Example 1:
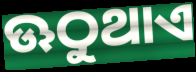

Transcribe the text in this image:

ଊଠୁଥାଏ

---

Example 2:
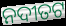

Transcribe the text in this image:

ନଦୀତଟ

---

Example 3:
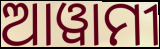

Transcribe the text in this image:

ଆୱାମୀ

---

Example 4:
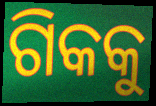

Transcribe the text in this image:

ଗିକକୁ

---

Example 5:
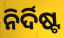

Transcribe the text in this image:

ନିର୍ଦିଷ୍ଟ